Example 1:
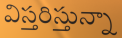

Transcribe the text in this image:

విస్తరిస్తున్నా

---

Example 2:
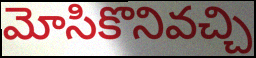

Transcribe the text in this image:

మోసికొనివచ్చి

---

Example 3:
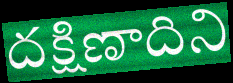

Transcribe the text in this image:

దక్షిణాదిని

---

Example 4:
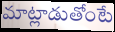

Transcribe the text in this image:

మాట్లాడుతోంటే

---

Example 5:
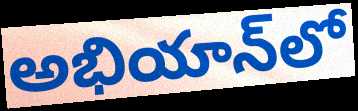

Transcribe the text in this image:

అభియాన్‌లో